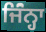
ਜਿੰਂਨ੍ਹਾ